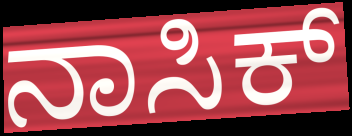
ನಾಸಿಕ್